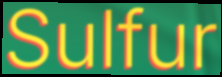
Sulfur